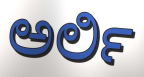
ಅರ್ಲಿ